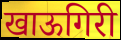
खाऊगिरी